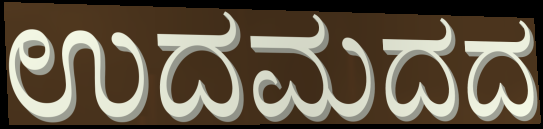
ಉದಮದದ